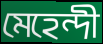
মেহেন্দী